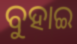
ବୁହାଇ